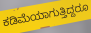
ಕಡಿಮೆಯಾಗುತ್ತಿದ್ದರೂ